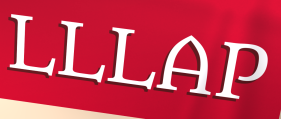
LLLAP